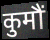
कुमौं